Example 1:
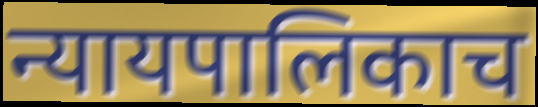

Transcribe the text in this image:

न्यायपालिकाच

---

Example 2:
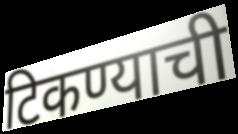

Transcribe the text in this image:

टिकण्याची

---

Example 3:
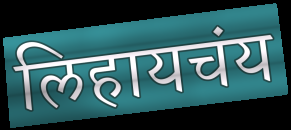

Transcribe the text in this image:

लिहायचंय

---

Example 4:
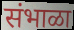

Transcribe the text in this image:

संभाळा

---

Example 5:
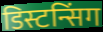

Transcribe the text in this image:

डिस्टन्सिंग